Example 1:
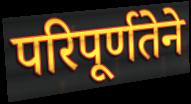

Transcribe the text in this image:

परिपूर्णतेने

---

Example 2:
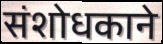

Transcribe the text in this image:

संशोधकाने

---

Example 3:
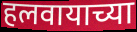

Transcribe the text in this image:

हलवायाच्या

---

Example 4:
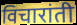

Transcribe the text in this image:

विचारांती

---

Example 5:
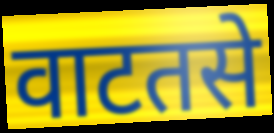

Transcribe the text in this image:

वाटतसे